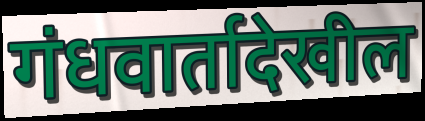
गंधवार्तादेखील